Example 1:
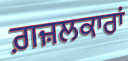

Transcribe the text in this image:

ਗ਼ਜ਼ਲਕਾਰਾਂ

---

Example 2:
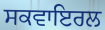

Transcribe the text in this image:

ਸਕਵਾਇਰਲ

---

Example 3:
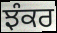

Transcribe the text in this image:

ਝੰਕਰ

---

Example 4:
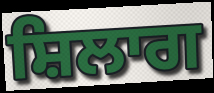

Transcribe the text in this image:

ਸ਼ਿਲਾਗ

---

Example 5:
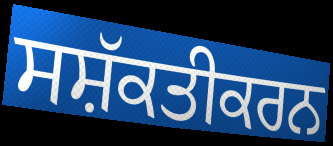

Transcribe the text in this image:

ਸਸ਼ੱਕਤੀਕਰਨ